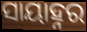
ସାୟାହ୍ନର